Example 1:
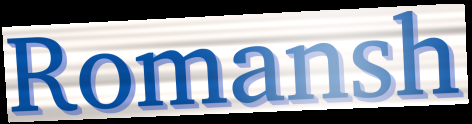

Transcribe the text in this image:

Romansh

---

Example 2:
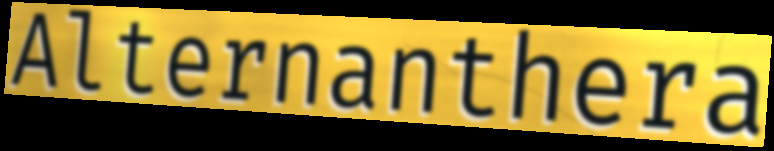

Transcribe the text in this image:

Alternanthera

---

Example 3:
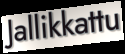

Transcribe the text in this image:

Jallikkattu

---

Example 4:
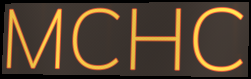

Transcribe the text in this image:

MCHC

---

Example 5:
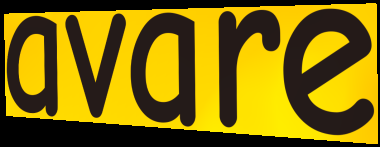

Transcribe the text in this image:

avare